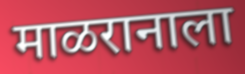
माळरानाला